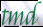
tmd